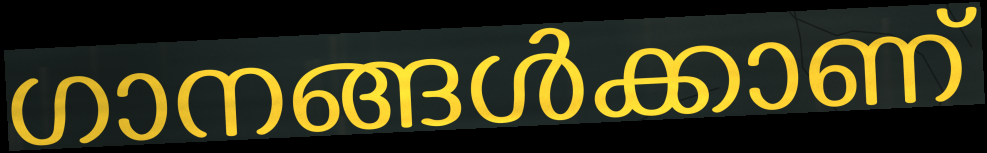
ഗാനങ്ങൾക്കാണ്